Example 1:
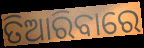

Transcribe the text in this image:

ତିଆରିବାରେ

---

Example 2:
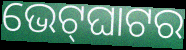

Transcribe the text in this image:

ଭେଟ୍‌ଘାଟର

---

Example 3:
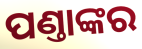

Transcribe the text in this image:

ପଣ୍ତାଙ୍କର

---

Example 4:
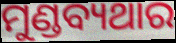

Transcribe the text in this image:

ମୁଣ୍ଡବ୍ୟଥାର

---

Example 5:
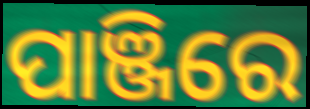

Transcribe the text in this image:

ପାଞ୍ଜିରେ